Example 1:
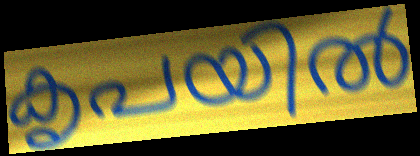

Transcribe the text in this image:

കൃപയിൽ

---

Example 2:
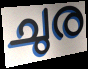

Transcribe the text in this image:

ചുര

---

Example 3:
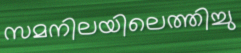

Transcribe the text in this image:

സമനിലയിലെത്തിച്ചു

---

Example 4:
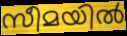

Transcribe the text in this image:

സീമയിൽ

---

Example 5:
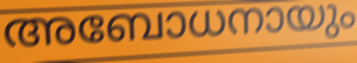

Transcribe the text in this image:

അബോധനായും